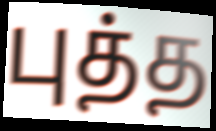
புத்த